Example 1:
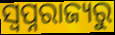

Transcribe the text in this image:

ସ୍ୱପ୍ନରାଜ୍ୟରୁ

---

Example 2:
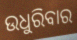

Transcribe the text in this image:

ଉଧୁରିବାର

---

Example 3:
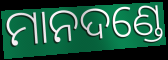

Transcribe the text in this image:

ମାନଦଣ୍ଡେ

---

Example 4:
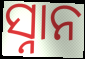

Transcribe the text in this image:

ସ୍ନାନ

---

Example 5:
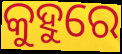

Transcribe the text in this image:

କୁହୁରେ